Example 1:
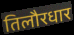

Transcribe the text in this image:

तिलौरधार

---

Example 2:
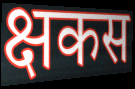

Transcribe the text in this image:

क्षकस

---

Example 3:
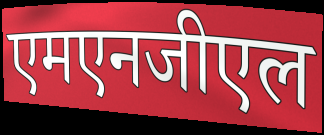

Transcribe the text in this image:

एमएनजीएल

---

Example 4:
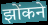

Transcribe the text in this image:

झोंकने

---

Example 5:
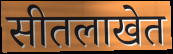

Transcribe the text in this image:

सीतलाखेत